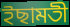
ইছামতী